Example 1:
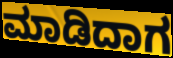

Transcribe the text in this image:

ಮಾಡಿದಾಗ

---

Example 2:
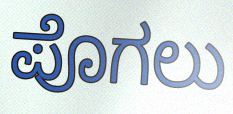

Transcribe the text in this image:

ಪೊಗಲು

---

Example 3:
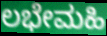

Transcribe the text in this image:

ಲಭೇಮಹಿ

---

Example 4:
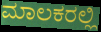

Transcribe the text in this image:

ಮಾಲಕರಲ್ಲಿ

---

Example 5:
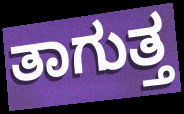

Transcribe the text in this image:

ತಾಗುತ್ತ